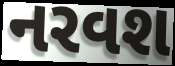
નરવશ